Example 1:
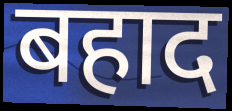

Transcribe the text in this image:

बहाद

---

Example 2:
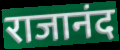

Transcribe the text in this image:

राजानंद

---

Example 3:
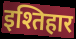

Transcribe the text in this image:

इश्तिहार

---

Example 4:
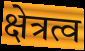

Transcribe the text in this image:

क्षेत्रत्व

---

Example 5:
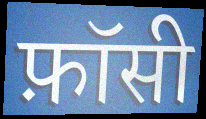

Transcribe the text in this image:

फ़ॉसी